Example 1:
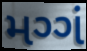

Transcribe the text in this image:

મગ્ગં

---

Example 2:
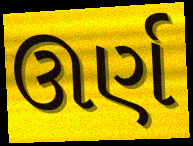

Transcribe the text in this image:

ઊર્ણ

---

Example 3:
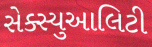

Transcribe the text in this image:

સેક્સ્યુઆલિટી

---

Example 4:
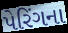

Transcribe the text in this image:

પેરિંગના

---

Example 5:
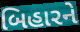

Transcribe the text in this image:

બિહારને